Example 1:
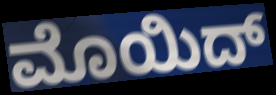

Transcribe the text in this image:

ಮೊಯಿದ್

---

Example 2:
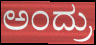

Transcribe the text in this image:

ಅಂದ್ರು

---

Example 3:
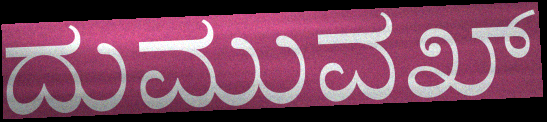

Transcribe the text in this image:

ದುಮುವಖ್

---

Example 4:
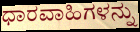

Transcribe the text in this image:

ಧಾರವಾಹಿಗಳನ್ನು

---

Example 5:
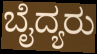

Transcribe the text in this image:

ಬೈದ್ಯರು